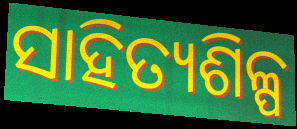
ସାହିତ୍ୟଶିଳ୍ପ